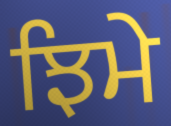
ਝਿਮੇ